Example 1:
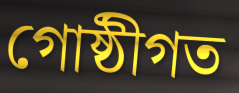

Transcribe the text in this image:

গোষ্ঠীগত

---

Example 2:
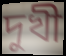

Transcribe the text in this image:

দুখী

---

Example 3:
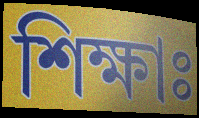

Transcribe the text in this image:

শিক্ষাঃ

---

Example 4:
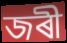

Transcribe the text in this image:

জৰী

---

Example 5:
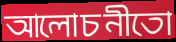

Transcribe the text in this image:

আলোচনীতো